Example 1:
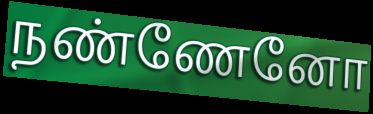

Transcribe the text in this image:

நண்ணேனோ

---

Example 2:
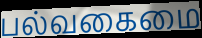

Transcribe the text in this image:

பல்வகைமை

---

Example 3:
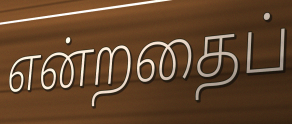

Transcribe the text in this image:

என்றதைப்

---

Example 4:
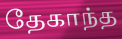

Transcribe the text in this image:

தேகாந்த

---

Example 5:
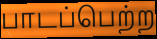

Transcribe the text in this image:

பாடப்பெற்ற